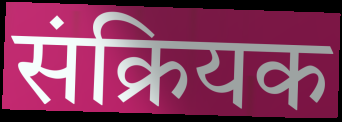
संक्रियक